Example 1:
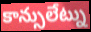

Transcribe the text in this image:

కాన్సులేట్ను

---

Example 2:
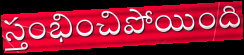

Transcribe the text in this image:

స్తంభించిపోయింది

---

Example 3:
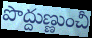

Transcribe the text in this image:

పొద్దుణ్ణుంచీ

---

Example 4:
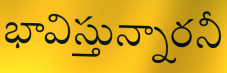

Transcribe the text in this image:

భావిస్తున్నారనీ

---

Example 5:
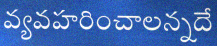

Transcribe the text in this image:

వ్యవహరించాలన్నదే